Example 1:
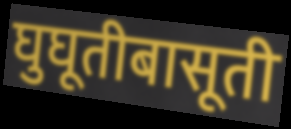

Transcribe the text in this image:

घुघूतीबासूती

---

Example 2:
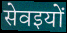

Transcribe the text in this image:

सेवइयों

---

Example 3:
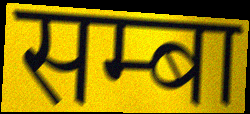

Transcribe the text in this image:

सम्बा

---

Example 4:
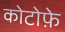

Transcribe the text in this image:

कोटोफ़े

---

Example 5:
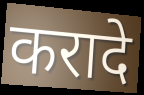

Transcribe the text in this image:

करादे